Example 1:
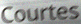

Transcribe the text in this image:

Courtes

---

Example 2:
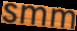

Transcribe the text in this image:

smm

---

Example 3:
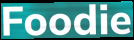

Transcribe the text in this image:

Foodie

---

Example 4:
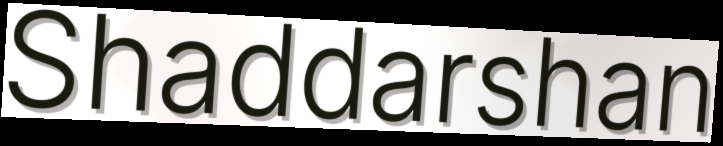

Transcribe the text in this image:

Shaddarshan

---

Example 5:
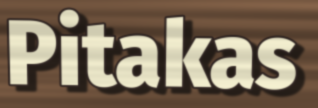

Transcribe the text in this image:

Pitakas